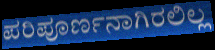
ಪರಿಪೂರ್ಣನಾಗಿರಲಿಲ್ಲ